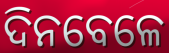
ଦିନବେଳେ